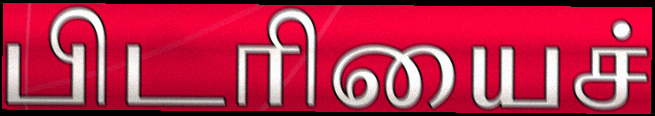
பிடரியைச்